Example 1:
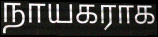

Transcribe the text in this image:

நாயகராக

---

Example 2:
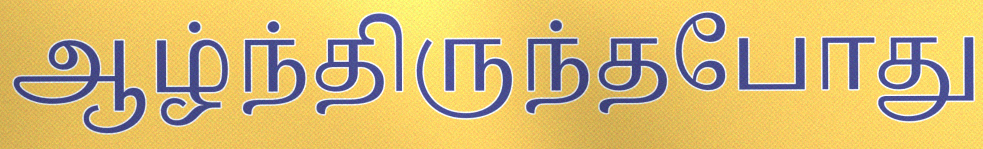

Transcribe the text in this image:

ஆழ்ந்திருந்தபோது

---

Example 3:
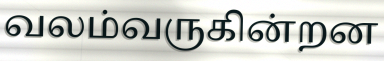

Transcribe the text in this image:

வலம்வருகின்றன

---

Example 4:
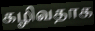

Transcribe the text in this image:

கழிவதாக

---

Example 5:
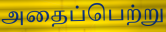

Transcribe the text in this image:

அதைப்பெற்று